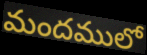
మందములో